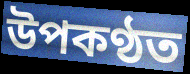
উপকণ্ঠত